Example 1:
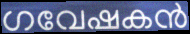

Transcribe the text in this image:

ഗവേഷകൻ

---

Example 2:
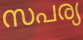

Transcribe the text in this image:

സപര്യ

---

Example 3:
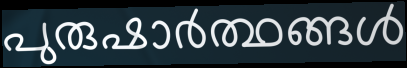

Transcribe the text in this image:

പുരുഷാർത്ഥങ്ങൾ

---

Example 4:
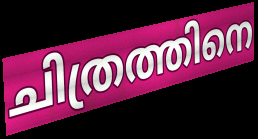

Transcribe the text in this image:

ചിത്രത്തിനെ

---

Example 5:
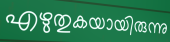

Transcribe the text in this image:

എഴുതുകയായിരുന്നു